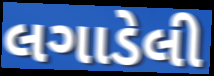
લગાડેલી